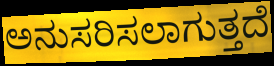
ಅನುಸರಿಸಲಾಗುತ್ತದೆ